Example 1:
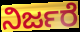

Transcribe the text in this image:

ನಿರ್ಜರೆ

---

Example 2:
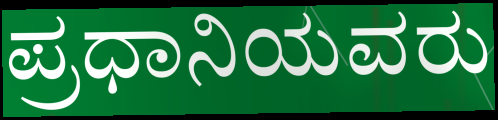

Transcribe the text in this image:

ಪ್ರಧಾನಿಯವರು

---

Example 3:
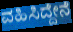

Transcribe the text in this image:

ವಹಿಸಿದ್ದೇನೆ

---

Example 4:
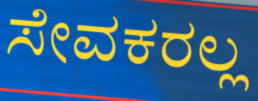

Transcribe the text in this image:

ಸೇವಕರಲ್ಲ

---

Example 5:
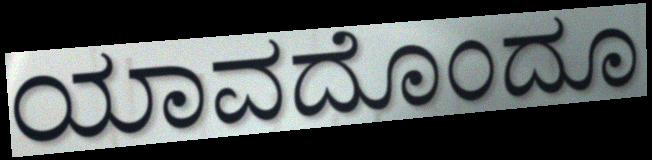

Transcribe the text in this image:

ಯಾವದೊಂದೂ